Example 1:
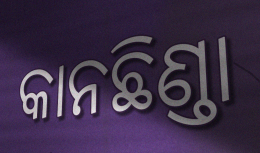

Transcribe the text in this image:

କାନଛିଣ୍ଡା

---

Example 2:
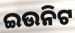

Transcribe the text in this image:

ଇଉନିଟ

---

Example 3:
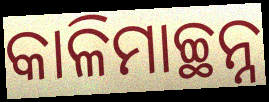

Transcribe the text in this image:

କାଳିମାଚ୍ଛନ୍ନ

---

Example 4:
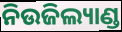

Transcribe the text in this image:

ନିଉଜିଲ୍ୟାଣ୍ଡ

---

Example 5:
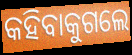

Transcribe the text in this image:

କହିବାକୁଗଲେ